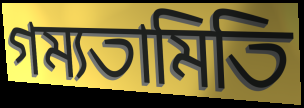
গম্যতামিতি